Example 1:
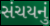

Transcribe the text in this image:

સંચયનું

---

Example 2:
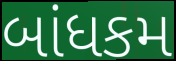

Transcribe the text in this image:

બાંધકમ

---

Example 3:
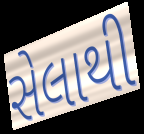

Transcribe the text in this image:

સેલાથી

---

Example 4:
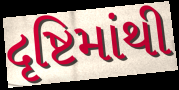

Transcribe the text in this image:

દૃષ્ટિમાંથી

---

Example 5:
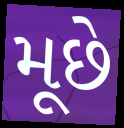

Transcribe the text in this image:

મૂછે